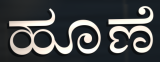
ಹೂಣೆ